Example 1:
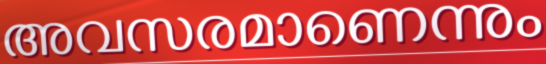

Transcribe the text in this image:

അവസരമാണെന്നും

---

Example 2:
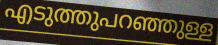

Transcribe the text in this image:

എടുത്തുപറഞ്ഞുള്ള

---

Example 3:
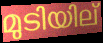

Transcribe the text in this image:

മുടിയില്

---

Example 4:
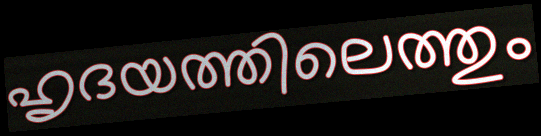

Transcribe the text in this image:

ഹൃദയത്തിലെത്തും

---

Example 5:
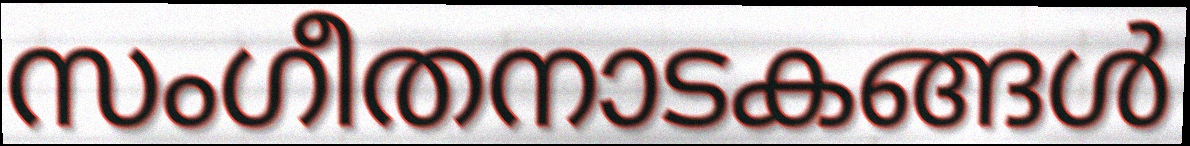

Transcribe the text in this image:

സംഗീതനാടകങ്ങൾ